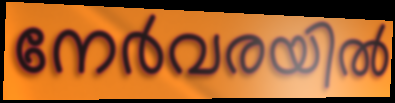
നേർവരയിൽ